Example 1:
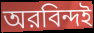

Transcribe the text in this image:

অরবিন্দই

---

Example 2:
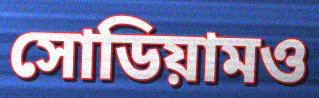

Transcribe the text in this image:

সোডিয়ামও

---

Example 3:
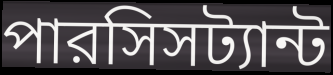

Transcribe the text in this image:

পারসিসট্যান্ট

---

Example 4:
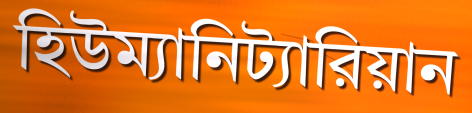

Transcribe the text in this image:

হিউম্যানিট্যারিয়ান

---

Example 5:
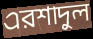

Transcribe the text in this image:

এরশাদুল